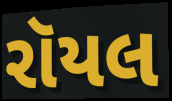
રૉયલ